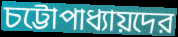
চট্টোপাধ্যায়দের